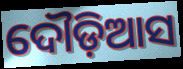
ଦୌଡ଼ିଆସ